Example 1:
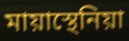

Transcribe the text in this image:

মায়াস্থেনিয়া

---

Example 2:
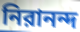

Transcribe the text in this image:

নিরানন্দ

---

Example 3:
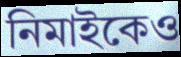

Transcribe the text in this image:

নিমাইকেও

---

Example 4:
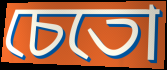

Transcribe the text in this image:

চেতো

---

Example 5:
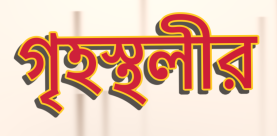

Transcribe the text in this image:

গৃহস্থলীর